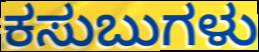
ಕಸುಬುಗಳು